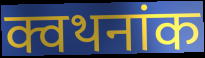
क्वथनांक